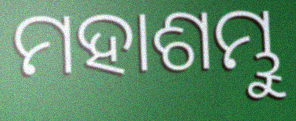
ମହାଶମ୍ଭୁ